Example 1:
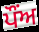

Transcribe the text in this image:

ਪੌਂਅ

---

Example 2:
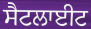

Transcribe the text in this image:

ਸੈਟਲਾਈਟ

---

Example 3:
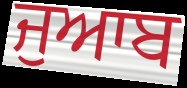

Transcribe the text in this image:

ਜੁਆਬ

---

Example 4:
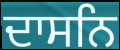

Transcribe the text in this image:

ਦਾਸਨਿ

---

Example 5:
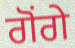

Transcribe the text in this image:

ਗੋਂਗੇ